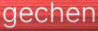
gechen